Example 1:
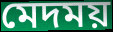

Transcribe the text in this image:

মেদময়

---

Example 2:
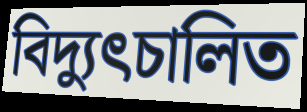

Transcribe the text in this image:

বিদ্যুৎচালিত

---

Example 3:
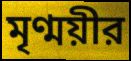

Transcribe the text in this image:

মৃণ্ময়ীর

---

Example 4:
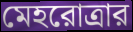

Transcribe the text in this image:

মেহরোত্রার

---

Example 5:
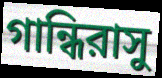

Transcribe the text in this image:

গান্ধিরাসু